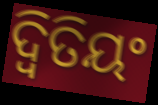
ଦ୍ୱିତିୟଂ